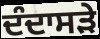
ਦੰਦਾਸੜੇ